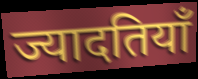
ज्यादतियाँ